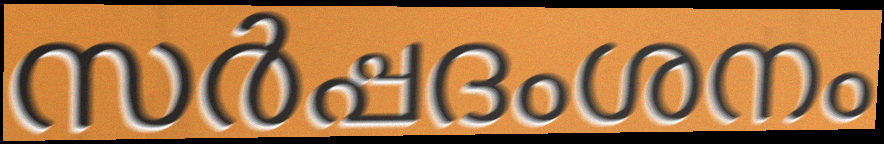
സർപ്പദംശനം